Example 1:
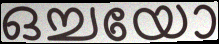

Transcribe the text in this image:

ഒച്ചയോ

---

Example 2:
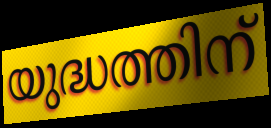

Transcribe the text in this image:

യുദ്ധത്തിന്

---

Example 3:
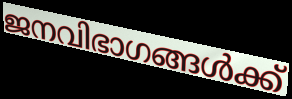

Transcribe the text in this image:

ജനവിഭാഗങ്ങൾക്ക്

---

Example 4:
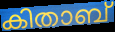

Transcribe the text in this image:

കിതാബ്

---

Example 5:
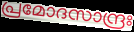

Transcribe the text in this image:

പ്രമോദസാന്ദ്രഃ